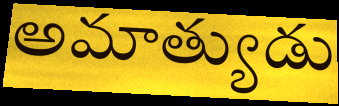
అమాత్యుడు